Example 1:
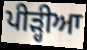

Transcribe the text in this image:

ਪੀੜ੍ਹੀਆ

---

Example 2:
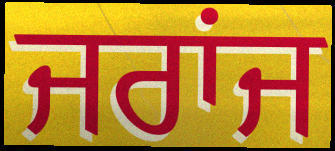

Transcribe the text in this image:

ਜਰਾਂਜ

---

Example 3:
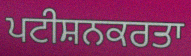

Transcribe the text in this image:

ਪਟੀਸ਼ਨਕਰਤਾ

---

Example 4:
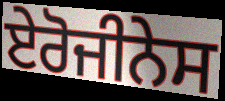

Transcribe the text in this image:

ਏਰੋਜੀਨੇਸ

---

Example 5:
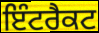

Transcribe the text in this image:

ਇੰਟਰੈਕਟ